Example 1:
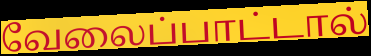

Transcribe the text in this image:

வேலைப்பாட்டால்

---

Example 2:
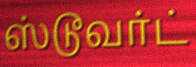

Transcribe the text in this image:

ஸ்டூவர்ட்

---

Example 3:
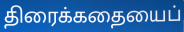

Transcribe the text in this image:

திரைக்கதையைப்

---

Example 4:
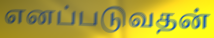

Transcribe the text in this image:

எனப்படுவதன்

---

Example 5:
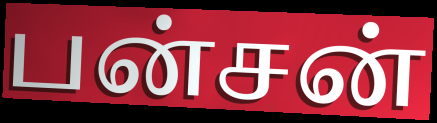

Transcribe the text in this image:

பன்சன்